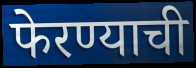
फेरण्याची